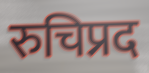
रुचिप्रद